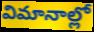
విమానాల్లో